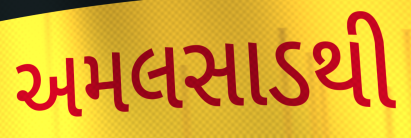
અમલસાડથી